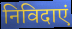
निविदाएं